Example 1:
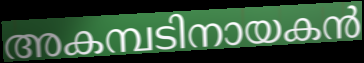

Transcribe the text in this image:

അകമ്പടിനായകൻ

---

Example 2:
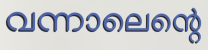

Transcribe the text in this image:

വന്നാലെന്റെ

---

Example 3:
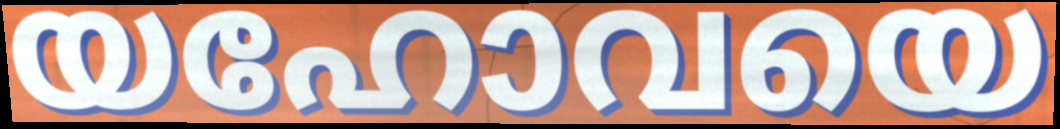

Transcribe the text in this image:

യഹോവയെ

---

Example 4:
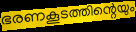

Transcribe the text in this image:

ഭരണകൂടത്തിന്റെയും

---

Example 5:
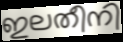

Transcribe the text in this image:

ഇലതീനി